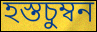
হস্তচুম্বন